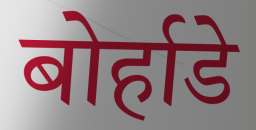
बोर्हाडे